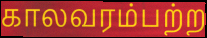
காலவரம்பற்ற